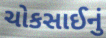
ચોકસાઈનું